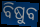
ବିଷୁବ